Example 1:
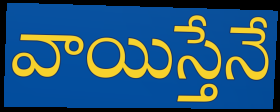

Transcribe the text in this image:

వాయిస్తేనే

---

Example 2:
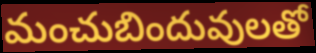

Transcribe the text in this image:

మంచుబిందువులతో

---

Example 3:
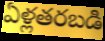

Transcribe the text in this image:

ఏళ్లతరబడి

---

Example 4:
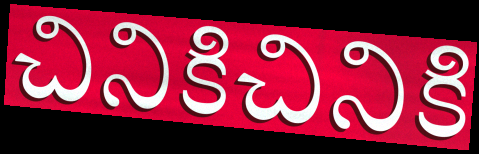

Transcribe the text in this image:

చినికిచినికి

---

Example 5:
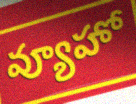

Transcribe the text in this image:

వ్యూహో